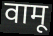
वामू